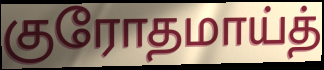
குரோதமாய்த்